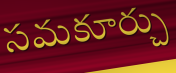
సమకూర్చు